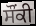
ਸੌਂਕੀ